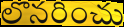
లొనరించు